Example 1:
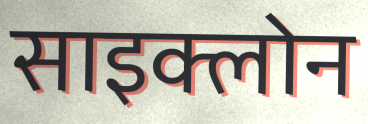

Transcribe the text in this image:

साइक्लोन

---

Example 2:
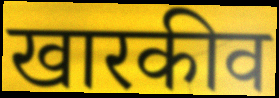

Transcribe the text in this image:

खारकीव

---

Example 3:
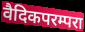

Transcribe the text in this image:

वैदिकपरम्परा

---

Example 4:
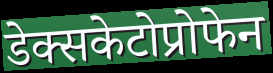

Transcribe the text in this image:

डेक्सकेटोप्रोफेन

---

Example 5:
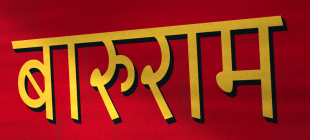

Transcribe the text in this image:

बारुराम